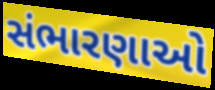
સંભારણાઓ